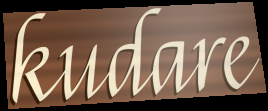
kudare